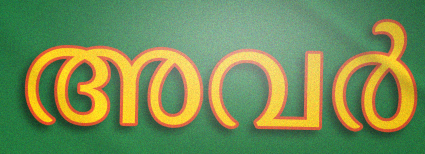
അവർ